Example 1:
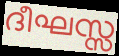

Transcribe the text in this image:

ദീഘസ്സ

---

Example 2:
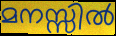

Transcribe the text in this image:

മനസ്സിൽ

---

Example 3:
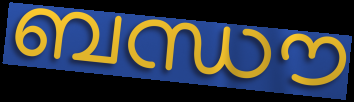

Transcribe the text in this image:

ബന്ധൗ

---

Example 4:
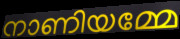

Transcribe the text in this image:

നാണിയമ്മേ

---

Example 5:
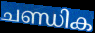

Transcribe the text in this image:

ചണ്ഡിക